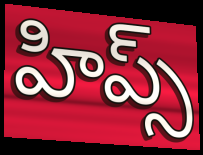
హిప్స్